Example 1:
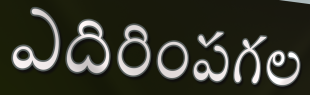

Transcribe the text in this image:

ఎదిరింపగల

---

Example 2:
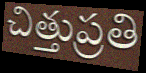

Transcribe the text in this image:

చిత్తుప్రతి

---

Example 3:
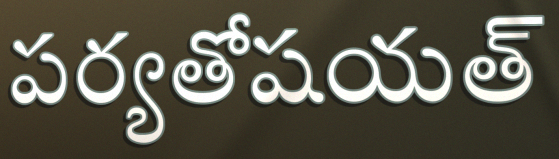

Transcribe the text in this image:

పర్యతోషయత్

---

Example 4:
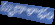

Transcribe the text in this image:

మృణాళాభం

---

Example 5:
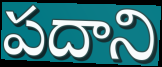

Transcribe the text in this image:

పదాని